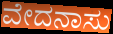
ವೇದನಾಸು